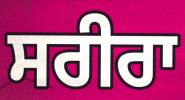
ਸਰੀਰਾ